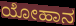
ಯೋಹಾನ